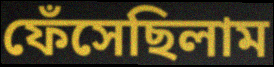
ফেঁসেছিলাম